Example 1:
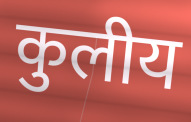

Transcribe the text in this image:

कुलीय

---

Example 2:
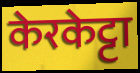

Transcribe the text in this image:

केरकेट्टा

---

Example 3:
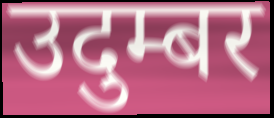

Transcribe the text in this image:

उदुम्बर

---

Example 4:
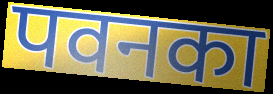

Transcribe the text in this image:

पवनका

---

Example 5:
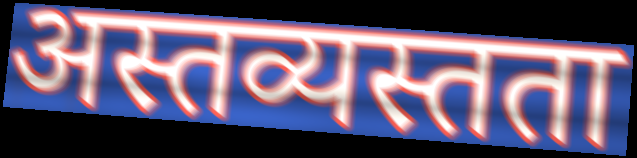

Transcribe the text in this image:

अस्तव्यस्तता